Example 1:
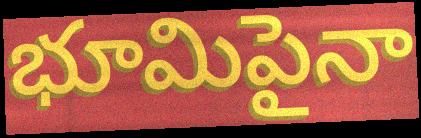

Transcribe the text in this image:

భూమిపైనా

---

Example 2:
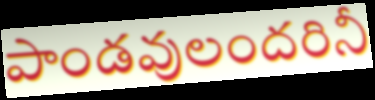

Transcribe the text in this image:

పాండవులందరినీ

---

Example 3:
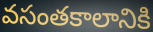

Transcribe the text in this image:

వసంతకాలానికి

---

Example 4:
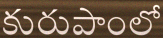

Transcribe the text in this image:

కురుపాంలో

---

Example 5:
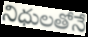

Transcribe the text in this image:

నిధులతోనే